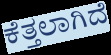
ಕೆತ್ತಲಾಗಿದೆ